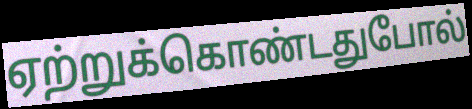
ஏற்றுக்கொண்டதுபோல்